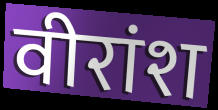
वीरांश